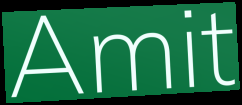
Amit